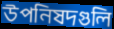
উপনিষদগুলি